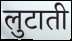
लुटाती